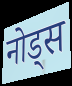
नोड्स